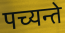
पच्यन्ते